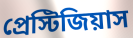
প্রেস্টিজিয়াস